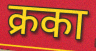
क्रका